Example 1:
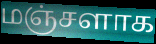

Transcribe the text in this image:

மஞ்சளாக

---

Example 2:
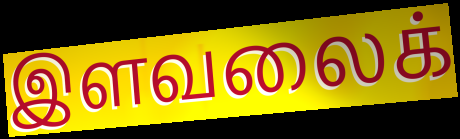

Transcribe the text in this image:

இளவலைக்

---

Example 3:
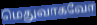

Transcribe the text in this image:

மெதுவாகவோ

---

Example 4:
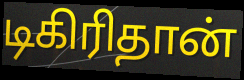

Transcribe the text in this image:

டிகிரிதான்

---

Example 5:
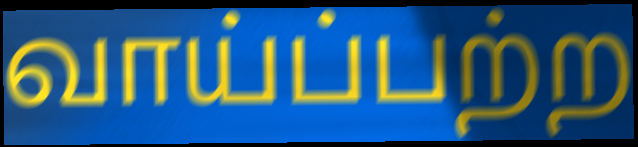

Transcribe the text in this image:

வாய்ப்பற்ற